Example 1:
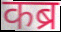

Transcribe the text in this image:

कब्र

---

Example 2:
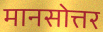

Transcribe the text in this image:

मानसोत्तर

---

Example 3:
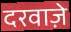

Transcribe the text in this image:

दरवाज़े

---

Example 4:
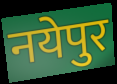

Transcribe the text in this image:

नयेपुर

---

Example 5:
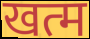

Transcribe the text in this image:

खत्‍म